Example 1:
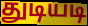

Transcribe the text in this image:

துடியடி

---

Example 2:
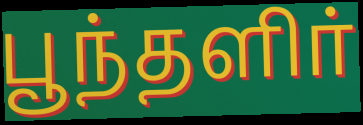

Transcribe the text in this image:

பூந்தளிர்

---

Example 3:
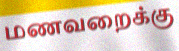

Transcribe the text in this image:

மணவறைக்கு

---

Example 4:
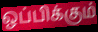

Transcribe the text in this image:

ஒப்பிக்கும்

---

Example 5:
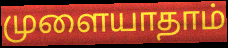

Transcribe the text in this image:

முளையாதாம்